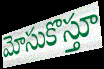
మోసుకొస్తూ